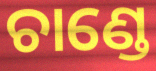
ଚାଣ୍ଡେ